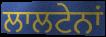
ਲਾਲਟੇਨਾਂ